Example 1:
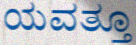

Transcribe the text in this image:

ಯವತ್ತೂ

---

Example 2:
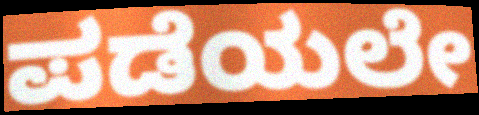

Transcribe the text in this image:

ಪಡೆಯಲೇ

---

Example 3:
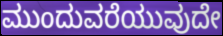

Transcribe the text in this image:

ಮುಂದುವರೆಯುವುದೇ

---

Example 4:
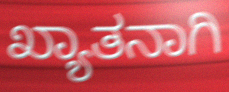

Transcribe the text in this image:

ಖ್ಯಾತನಾಗಿ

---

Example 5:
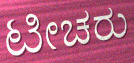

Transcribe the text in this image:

ಟೀಚರು